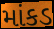
માંકડ